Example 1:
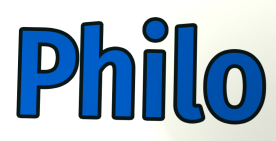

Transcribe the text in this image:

Philo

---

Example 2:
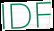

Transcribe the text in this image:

IDF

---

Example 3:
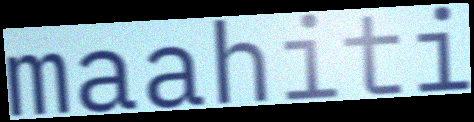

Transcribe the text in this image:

maahiti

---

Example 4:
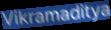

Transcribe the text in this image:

Vikramaditya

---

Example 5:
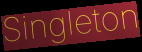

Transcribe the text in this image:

Singleton